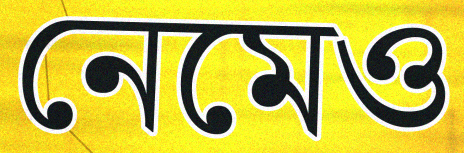
নেমেও